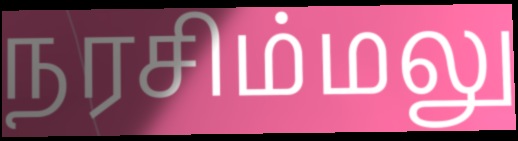
நரசிம்மலு